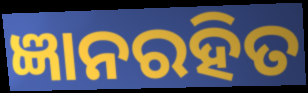
ଜ୍ଞାନରହିତ